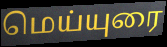
மெய்யுரை